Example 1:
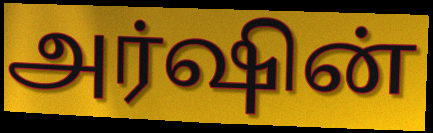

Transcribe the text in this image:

அர்ஷின்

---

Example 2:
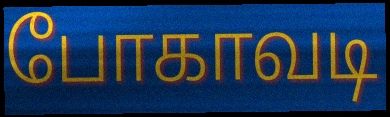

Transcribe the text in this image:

போகாவடி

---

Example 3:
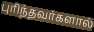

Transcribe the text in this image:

புரிந்தவர்களால்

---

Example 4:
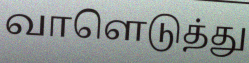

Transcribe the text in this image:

வாளெடுத்து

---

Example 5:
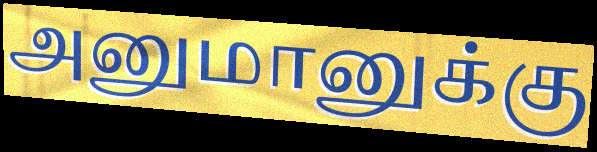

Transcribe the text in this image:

அனுமானுக்கு